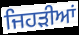
ਜਿਹੜੀਆਂ